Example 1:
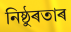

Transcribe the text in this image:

নিষ্ঠুৰতাৰ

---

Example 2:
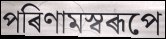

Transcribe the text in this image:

পৰিণামস্বৰূপে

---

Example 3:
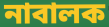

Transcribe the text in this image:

নাবালক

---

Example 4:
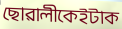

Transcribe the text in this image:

ছোৱালীকেইটাক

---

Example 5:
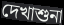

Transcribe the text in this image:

দেখাশুনা